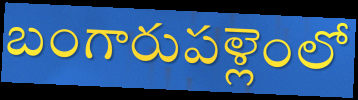
బంగారుపళ్లెంలో